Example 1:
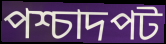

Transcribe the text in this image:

পশ্চাদপট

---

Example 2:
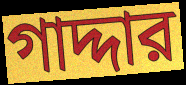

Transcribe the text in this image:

গাদ্দার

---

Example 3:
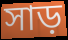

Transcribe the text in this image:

সাড়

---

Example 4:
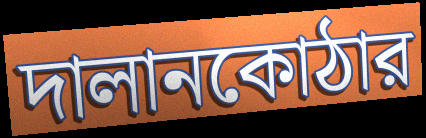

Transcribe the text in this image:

দালানকোঠার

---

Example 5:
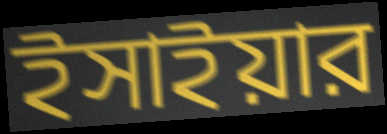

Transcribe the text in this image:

ইসাইয়ার